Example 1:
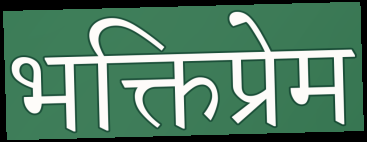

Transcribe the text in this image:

भक्तिप्रेम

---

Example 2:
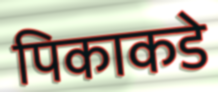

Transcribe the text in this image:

पिकाकडे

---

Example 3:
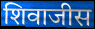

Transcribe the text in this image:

शिवाजीस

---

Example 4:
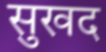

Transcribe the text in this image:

सुखद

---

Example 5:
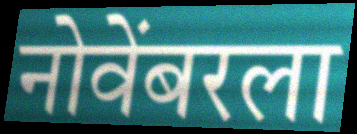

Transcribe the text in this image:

नोवेंबरला